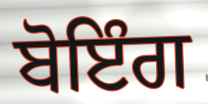
ਬੋਇੰਗ